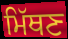
ਮਿੱਥਣ